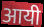
आयी